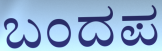
ಬಂದಪ